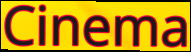
Cinema